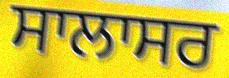
ਸਾਲਾਸਰ